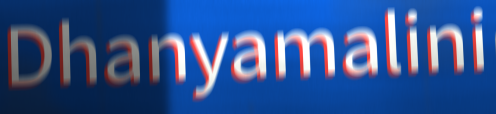
Dhanyamalini